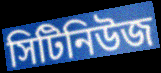
সিটিনিউজ